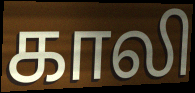
காலி